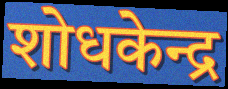
शोधकेन्द्र